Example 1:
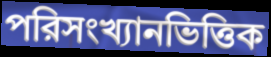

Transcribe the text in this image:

পরিসংখ্যানভিত্তিক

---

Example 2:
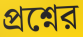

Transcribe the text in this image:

প্রশ্নের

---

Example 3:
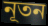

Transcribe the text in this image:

নূতন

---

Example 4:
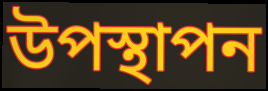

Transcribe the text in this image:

উপস্থাপন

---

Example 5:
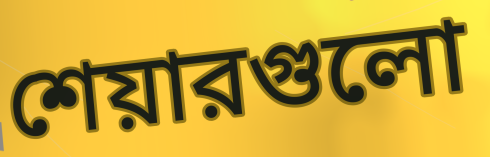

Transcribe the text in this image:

শেয়ারগুলো